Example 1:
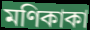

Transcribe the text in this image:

মণিকাকা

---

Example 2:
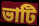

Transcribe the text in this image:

ভাটি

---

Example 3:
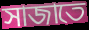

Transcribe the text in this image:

সাজাতে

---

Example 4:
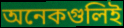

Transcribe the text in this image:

অনেকগুলিই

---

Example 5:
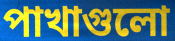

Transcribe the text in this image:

পাখাগুলো